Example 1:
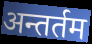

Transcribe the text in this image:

अन्तर्तम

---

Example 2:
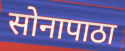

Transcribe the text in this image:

सोनापाठा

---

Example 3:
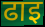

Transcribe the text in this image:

ढाइ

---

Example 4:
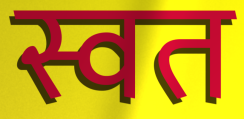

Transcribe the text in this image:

स्वत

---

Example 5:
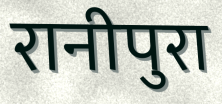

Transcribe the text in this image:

रानीपुरा